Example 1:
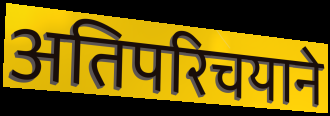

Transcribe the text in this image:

अतिपरिचयाने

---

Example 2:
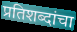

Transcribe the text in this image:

प्रतिशब्दांचा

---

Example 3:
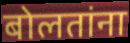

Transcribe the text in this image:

बोलतांना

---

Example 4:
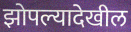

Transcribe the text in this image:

झोपल्यादेखील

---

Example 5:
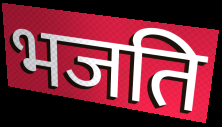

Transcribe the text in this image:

भजति